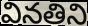
వినతిని